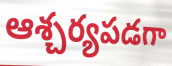
ఆశ్చర్యపడగా